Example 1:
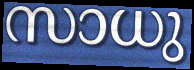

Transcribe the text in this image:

സാധു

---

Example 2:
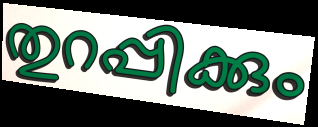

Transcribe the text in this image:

തുറപ്പിക്കും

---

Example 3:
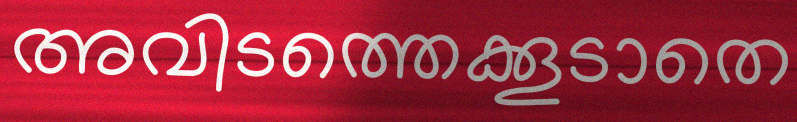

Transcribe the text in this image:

അവിടത്തെക്കൂടാതെ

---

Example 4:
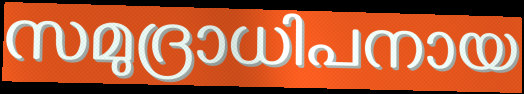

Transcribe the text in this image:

സമുദ്രാധിപനായ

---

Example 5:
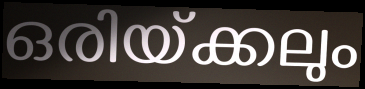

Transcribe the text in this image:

ഒരിയ്‌ക്കലും